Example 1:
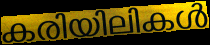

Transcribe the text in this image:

കരിയിലികൾ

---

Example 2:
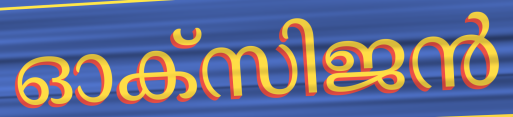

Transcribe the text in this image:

ഓക്സിജൻ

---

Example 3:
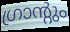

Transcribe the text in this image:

ഗ്രാന്റും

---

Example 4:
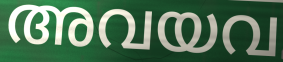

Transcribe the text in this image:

അവയവ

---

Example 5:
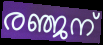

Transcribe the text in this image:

രഞ്ജന്